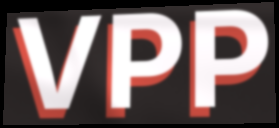
VPP